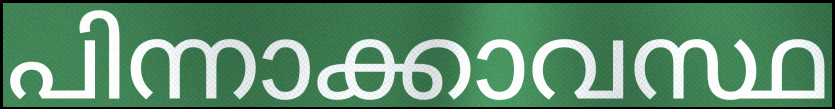
പിന്നാക്കാവസ്ഥ